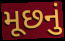
મૂછનું